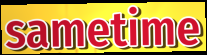
sametime